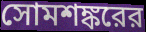
সোমশঙ্করের